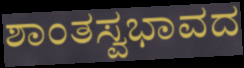
ಶಾಂತಸ್ವಭಾವದ